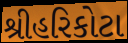
શ્રીહરિકોટા